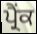
ਪ੍ਰੈਂਕ